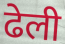
ढेली